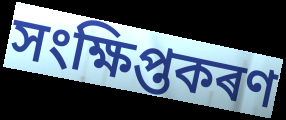
সংক্ষিপ্তকৰণ